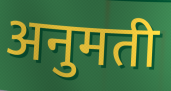
अनुमती